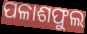
ପଳାଶଫୁଲ